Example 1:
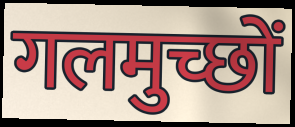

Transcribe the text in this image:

गलमुच्छों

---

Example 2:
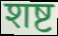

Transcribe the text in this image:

शष्ट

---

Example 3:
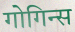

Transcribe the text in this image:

गोगिन्स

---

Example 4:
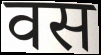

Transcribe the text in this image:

वस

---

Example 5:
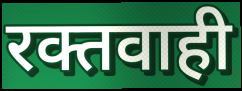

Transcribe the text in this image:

रक्तवाही